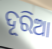
ଦୂରିଆ